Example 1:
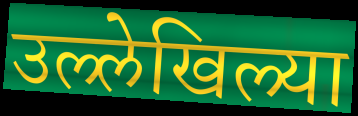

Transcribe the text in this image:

उल्लेखिल्या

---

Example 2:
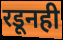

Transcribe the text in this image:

रडूनही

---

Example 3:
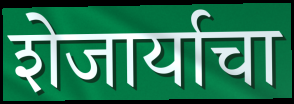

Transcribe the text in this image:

शेजार्याचा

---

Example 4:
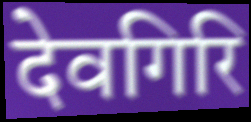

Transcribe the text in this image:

देवगिरि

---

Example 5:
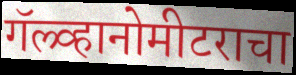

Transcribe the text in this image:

गॅल्व्हानोमीटराचा